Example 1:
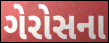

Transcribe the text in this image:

ગેરોસના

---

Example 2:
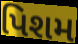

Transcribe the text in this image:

પિશમ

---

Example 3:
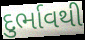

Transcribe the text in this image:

દુર્ભાવથી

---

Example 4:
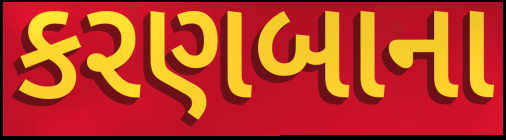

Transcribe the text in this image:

કરણબાના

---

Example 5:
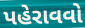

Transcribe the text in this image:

પહેરાવવો